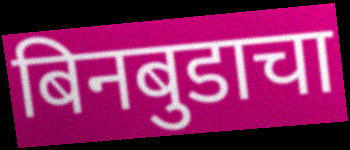
बिनबुडाचा